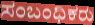
ಸಂಬಂಧಿಕರು